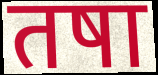
तषा